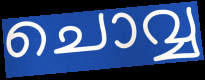
ചൊവ്വ